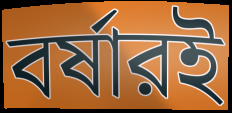
বর্ষারই